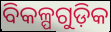
ବିକଳ୍ପଗୁଡ଼ିକ